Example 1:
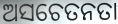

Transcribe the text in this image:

ଅସଚେତନତା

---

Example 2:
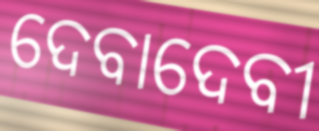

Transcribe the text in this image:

ଦେବାଦେବୀ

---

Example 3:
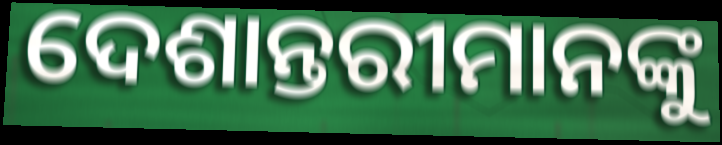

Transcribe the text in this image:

ଦେଶାନ୍ତରୀମାନଙ୍କୁ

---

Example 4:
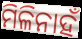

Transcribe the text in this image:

ମିଳିନାହଁ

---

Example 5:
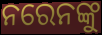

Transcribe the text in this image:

ନରେନଙ୍କୁ